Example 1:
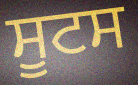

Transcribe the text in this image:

ਸੂਟਸ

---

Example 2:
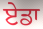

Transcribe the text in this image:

ਏਡਾ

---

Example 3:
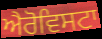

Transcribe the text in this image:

ਐਰੋਵਿਸਟਾ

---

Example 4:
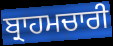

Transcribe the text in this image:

ਬ੍ਰਾਹਮਚਾਰੀ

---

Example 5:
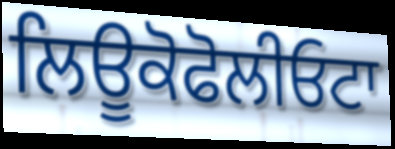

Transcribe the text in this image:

ਲਿਊਕੋਫੋਲੀਓਟਾ